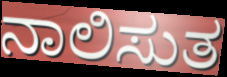
ನಾಲಿಸುತ